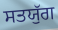
ਸਤਯੁੱਗ